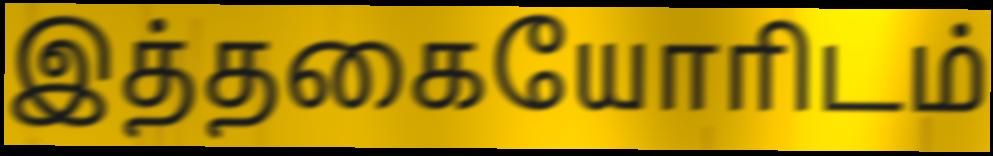
இத்தகையோரிடம்